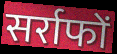
सर्राफों